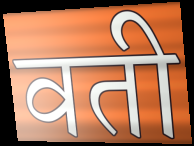
वती